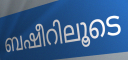
ബഷീറിലൂടെ